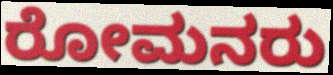
ರೋಮನರು